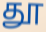
தூ